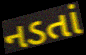
નડતાં